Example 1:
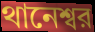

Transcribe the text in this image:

থানেশ্বর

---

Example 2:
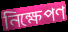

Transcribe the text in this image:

নিক্ষেপণ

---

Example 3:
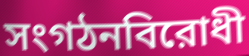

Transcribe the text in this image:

সংগঠনবিরোধী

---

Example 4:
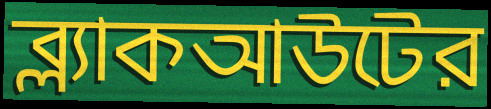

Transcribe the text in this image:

ব্ল্যাকআউটের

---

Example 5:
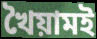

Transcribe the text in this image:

খৈয়ামই